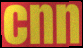
cnn